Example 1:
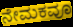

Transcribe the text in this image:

ನೇಮಕವೂ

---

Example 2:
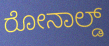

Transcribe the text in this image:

ರೋನಾಲ್ಡ್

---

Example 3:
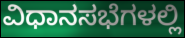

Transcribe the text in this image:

ವಿಧಾನಸಭೆಗಳಲ್ಲಿ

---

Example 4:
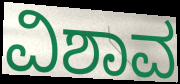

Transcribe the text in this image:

ವಿಶಾವ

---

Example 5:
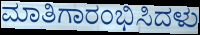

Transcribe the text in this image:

ಮಾತಿಗಾರಂಭಿಸಿದಳು